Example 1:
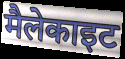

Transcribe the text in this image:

मैलेकाइट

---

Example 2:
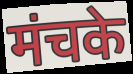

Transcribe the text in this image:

मंचके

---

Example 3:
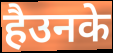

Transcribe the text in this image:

हैउनके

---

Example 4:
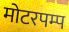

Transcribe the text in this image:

मोटरपम्प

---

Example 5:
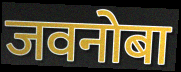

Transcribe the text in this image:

जवनोबा